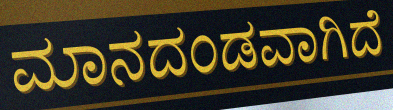
ಮಾನದಂಡವಾಗಿದೆ